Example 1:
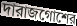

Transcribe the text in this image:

দারাজগোশের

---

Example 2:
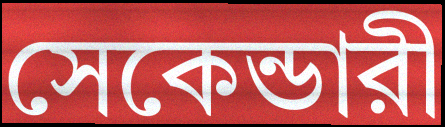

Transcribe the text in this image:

সেকেন্ডারী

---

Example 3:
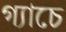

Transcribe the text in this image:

গ্যাচে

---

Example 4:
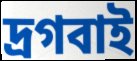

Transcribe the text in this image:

দ্রগবাই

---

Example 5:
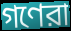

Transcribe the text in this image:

গণেরা